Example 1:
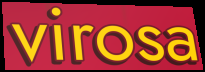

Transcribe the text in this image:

virosa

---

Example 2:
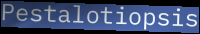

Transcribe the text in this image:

Pestalotiopsis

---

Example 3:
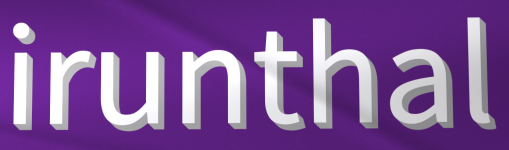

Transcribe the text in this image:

irunthal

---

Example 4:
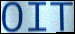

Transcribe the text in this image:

OIT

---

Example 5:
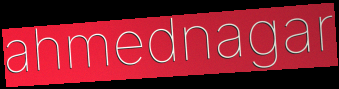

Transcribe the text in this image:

ahmednagar